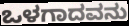
ಒಳಗಾದವನು